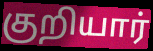
குறியார்